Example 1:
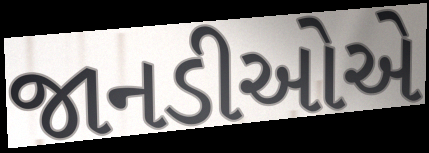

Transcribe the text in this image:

જાનડીઓએ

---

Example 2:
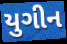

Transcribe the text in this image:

યુગીન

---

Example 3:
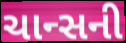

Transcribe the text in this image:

ચાન્સની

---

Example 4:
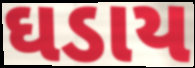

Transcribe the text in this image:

ઘડાય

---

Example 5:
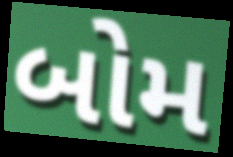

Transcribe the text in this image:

બોમ